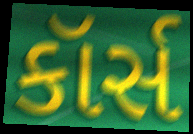
કૉર્સ